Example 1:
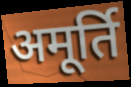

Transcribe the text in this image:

अमूर्ति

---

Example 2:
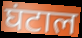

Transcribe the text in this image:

घंटाल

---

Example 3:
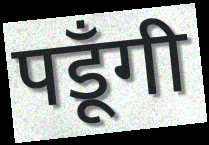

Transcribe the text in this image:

पडूँगी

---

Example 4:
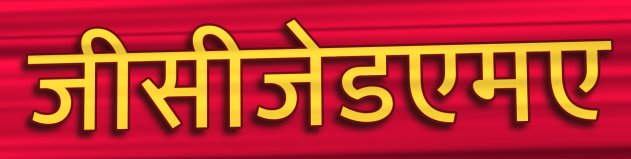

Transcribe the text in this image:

जीसीजेडएमए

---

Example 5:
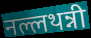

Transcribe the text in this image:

नल्लथन्नी